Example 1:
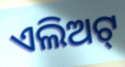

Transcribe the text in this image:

ଏଲିଅଟ୍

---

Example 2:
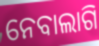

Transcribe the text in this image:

ନେବାଲାଗି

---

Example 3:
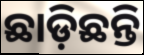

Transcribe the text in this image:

ଛାଡ଼ିଛନ୍ତି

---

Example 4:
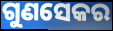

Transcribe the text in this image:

ଗୁଣସେକର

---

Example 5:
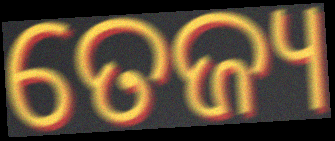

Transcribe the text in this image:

ତେଜ୍ୟ